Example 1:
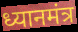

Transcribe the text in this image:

ध्यानमंत्र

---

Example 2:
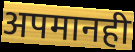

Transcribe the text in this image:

अपमानही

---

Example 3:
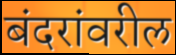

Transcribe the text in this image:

बंदरांवरील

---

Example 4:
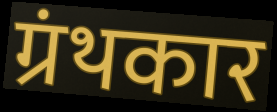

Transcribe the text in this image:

ग्रंथकार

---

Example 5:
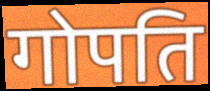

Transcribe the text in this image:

गोपति